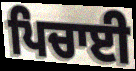
ਪਿਚਾਈ